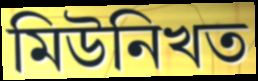
মিউনিখত